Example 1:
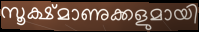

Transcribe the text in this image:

സൂക്ഷ്മാണുക്കളുമായി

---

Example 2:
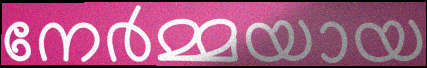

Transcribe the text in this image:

നേർമ്മയായ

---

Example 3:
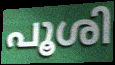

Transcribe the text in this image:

പൂശി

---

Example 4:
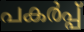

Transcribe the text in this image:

പകർപ്പ്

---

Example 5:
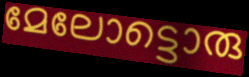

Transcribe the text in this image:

മേലോട്ടൊരു